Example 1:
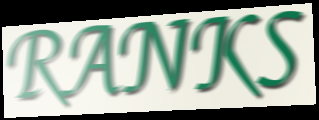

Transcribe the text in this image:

RANKS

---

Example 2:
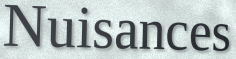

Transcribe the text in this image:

Nuisances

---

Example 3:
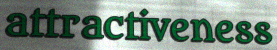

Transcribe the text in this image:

attractiveness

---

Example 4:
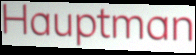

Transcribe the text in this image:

Hauptman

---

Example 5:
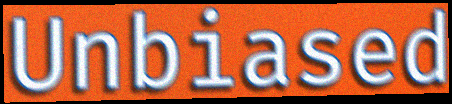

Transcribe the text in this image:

Unbiased